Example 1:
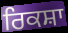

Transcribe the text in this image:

ਰਿਕਸ਼ਾ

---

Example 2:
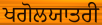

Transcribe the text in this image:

ਖਗੋਲਯਾਤਰੀ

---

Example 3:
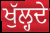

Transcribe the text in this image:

ਖੁੱਲ੍ਹਦੇ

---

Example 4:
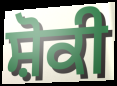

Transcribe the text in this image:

ਸ਼ੋਕੀ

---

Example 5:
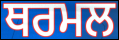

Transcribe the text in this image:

ਥਰਮਲ